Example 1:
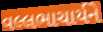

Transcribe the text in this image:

વલ્લભાચાર્યને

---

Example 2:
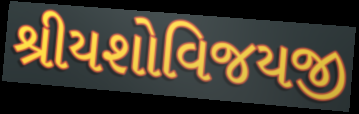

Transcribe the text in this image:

શ્રીયશોવિજયજી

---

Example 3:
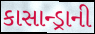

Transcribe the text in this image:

કાસાન્ડ્રાની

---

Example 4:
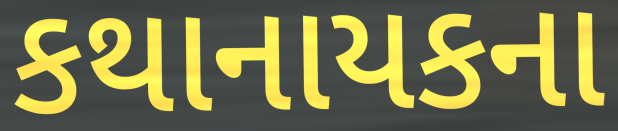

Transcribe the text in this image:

કથાનાયકના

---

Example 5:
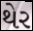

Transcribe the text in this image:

થેર